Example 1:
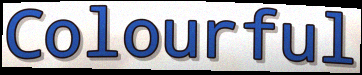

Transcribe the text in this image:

Colourful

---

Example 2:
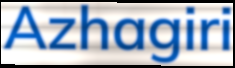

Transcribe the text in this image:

Azhagiri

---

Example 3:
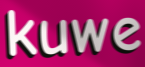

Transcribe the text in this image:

kuwe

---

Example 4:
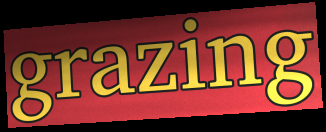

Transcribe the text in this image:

grazing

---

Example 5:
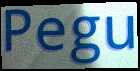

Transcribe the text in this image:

Pegu